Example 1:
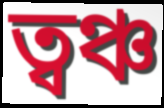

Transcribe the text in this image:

ত্বঞ্চ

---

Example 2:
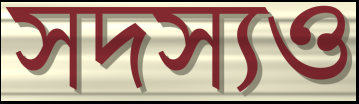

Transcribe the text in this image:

সদস্যও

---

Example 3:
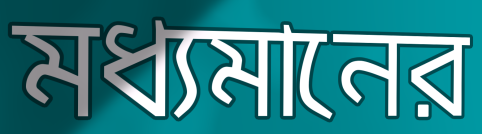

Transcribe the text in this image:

মধ্যমানের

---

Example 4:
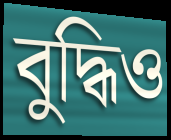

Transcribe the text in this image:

বুদ্ধিও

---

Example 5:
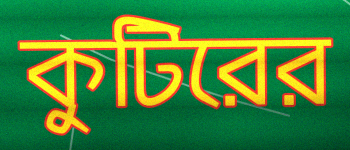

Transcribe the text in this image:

কুটিরের